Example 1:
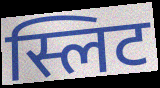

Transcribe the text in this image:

स्लिट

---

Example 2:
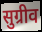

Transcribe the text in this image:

सुग्रीव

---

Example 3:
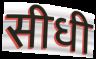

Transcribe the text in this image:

सीधी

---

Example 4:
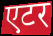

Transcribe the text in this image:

एटर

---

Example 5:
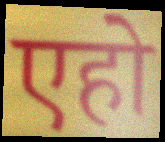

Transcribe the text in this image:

एहो